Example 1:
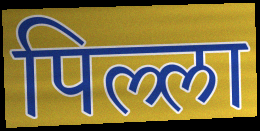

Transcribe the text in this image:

पिल्ला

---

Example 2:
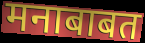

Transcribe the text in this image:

मनाबाबत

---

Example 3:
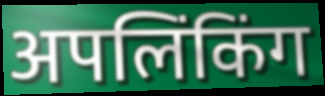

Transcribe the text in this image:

अपलिंकिंग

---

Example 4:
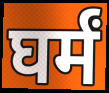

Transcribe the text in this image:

घर्मं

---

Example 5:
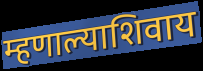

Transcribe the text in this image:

म्हणाल्याशिवाय